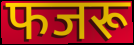
फजरू